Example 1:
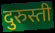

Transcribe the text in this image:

दुरुस्ती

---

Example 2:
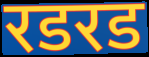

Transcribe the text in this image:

रडरड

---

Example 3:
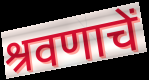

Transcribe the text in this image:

श्रवणाचें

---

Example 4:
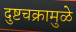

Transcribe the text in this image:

दुष्टचक्रामुळे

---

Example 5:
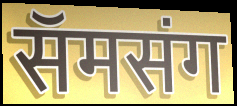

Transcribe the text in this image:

सॅमसंग